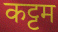
कट्टम